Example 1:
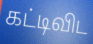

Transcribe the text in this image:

கட்டிவிட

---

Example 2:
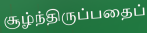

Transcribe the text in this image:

சூழ்ந்திருப்பதைப்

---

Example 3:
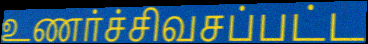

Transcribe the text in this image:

உணர்ச்சிவசப்பட்ட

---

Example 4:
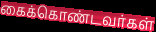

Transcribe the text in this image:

கைக்கொண்டவர்கள்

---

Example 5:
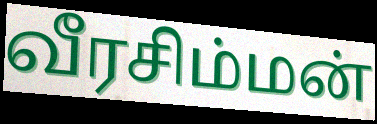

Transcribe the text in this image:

வீரசிம்மன்